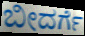
ಬೀದರ್ಗೆ